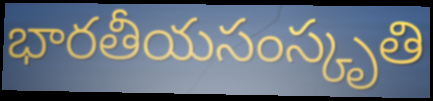
భారతీయసంస్కృతి